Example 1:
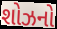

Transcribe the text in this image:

શોઝનો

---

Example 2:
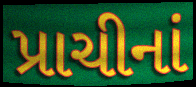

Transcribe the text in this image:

પ્રાચીનાં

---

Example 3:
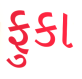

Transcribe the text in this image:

ફુકા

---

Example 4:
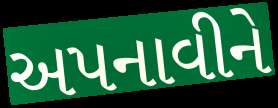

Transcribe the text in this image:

અપનાવીને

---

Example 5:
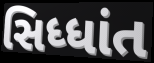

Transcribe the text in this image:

સિધ્ધાંત